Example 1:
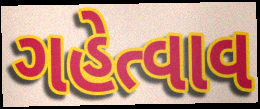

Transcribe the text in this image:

ગહેત્વાવ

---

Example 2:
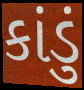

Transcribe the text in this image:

કાંડું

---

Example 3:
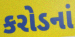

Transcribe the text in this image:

કરોડનાં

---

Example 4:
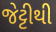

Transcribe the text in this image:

જેટ્ટીથી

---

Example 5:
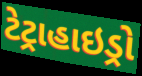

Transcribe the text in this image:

ટેટ્રાહાઇડ્રો